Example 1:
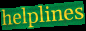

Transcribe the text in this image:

helplines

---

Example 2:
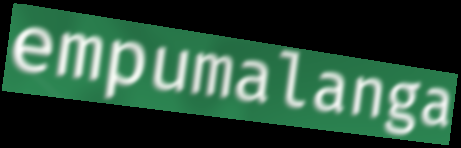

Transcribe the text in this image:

empumalanga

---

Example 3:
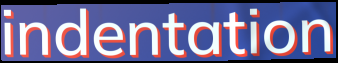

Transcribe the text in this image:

indentation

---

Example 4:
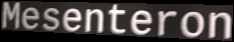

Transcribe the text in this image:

Mesenteron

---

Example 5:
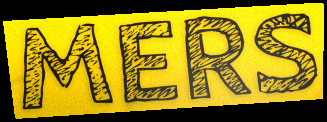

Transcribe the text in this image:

MERS